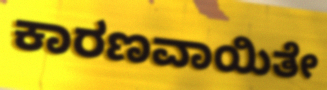
ಕಾರಣವಾಯಿತೇ